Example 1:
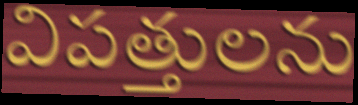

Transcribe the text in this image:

విపత్తులను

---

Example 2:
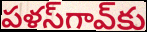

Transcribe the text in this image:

పళస్‌గావ్‌కు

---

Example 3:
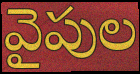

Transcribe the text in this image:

వైపుల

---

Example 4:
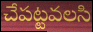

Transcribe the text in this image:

చేపట్టవలసి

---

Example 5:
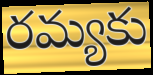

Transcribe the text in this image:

రమ్యకు